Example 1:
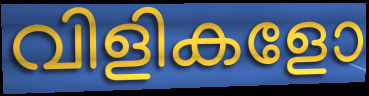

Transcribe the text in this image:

വിളികളോ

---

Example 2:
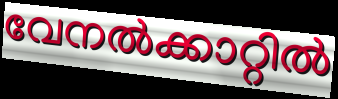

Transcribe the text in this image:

വേനൽക്കാറ്റിൽ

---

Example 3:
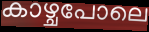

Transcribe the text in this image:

കാഴ്ചപോലെ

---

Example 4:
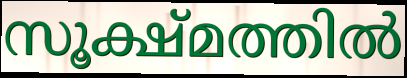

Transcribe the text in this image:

സൂക്ഷ്മത്തിൽ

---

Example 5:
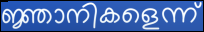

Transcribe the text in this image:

ജ്ഞാനികളെന്ന്